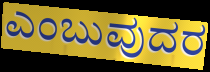
ಎಂಬುವುದರ